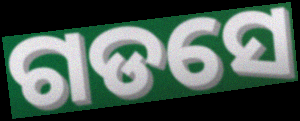
ଗଡସେ